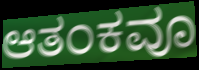
ಆತಂಕವೂ